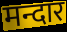
मन्दार